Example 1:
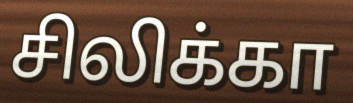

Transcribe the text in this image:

சிலிக்கா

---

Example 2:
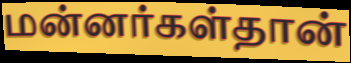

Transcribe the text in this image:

மன்னர்கள்தான்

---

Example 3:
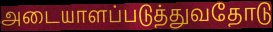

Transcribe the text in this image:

அடையாளப்படுத்துவதோடு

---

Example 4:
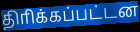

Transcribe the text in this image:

திரிக்கப்பட்டன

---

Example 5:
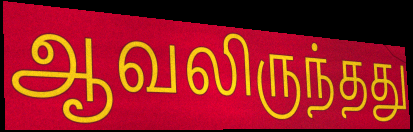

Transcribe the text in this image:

ஆவலிருந்தது